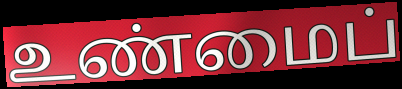
உண்மைப்